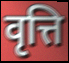
वृत्ति